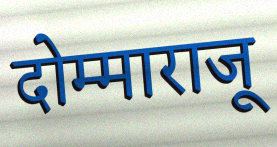
दोम्माराजू